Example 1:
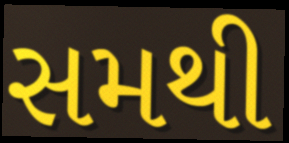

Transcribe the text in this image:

સમથી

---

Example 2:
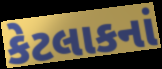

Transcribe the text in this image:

કેટલાકનાં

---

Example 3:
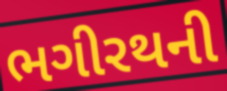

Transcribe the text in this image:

ભગીરથની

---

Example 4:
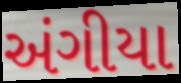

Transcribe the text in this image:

અંગીયા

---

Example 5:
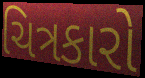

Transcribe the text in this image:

ચિત્રકારો